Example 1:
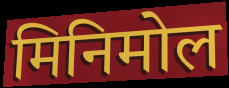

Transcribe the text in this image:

मिनिमोल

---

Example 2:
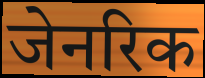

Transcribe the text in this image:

जेनरिक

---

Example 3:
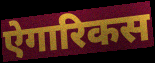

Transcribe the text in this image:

ऐगारिकस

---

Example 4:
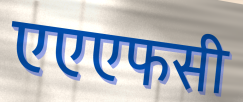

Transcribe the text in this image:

एएएफसी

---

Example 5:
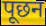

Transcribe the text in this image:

पूछन